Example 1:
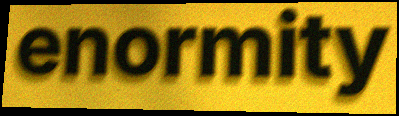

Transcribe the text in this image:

enormity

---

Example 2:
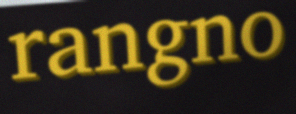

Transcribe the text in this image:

rangno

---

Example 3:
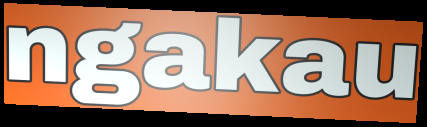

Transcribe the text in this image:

ngakau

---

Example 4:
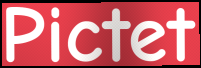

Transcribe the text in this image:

Pictet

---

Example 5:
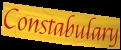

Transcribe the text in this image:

Constabulary